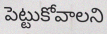
పెట్టుకోవాలని